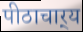
पीठाचार्य